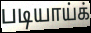
படியாய்க்